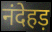
नंदेहड़